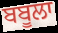
ਬਬੂਲਾ